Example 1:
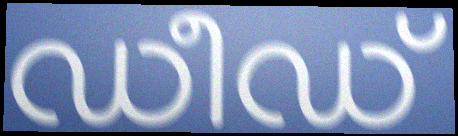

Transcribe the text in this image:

ഡീഡ്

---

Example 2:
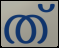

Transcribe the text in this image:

ത്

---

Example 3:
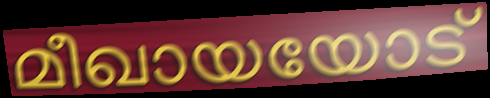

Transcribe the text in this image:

മീഖായയോട്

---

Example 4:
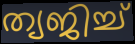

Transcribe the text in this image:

ത്യജിച്ച്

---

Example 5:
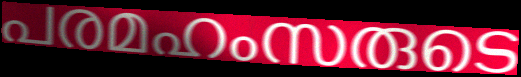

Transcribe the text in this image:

പരമഹംസരുടെ